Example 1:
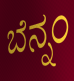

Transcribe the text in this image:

ಬೆನ್ನಂ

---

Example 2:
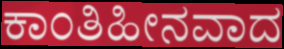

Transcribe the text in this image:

ಕಾಂತಿಹೀನವಾದ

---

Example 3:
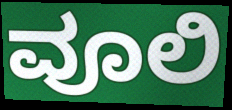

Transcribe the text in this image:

ವೂಲಿ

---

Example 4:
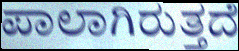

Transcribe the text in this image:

ಪಾಲಾಗಿರುತ್ತದೆ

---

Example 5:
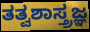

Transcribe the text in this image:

ತತ್ವಶಾಸ್ತ್ರಜ್ಞ